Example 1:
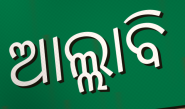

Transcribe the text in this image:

ଆଲ୍ଲାବି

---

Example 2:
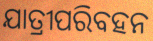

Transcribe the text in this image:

ଯାତ୍ରୀପରିବହନ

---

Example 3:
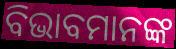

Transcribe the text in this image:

ବିଭାବମାନଙ୍କ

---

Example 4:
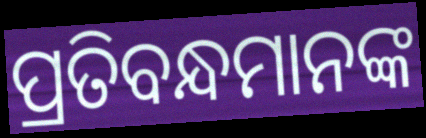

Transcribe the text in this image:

ପ୍ରତିବନ୍ଧମାନଙ୍କ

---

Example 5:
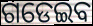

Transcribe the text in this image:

ଗଡେଇବ